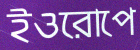
ইওরোপে